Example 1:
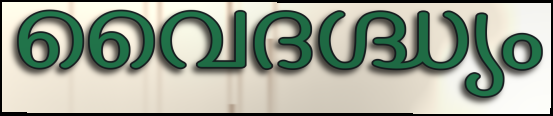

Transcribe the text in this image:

വൈദഗ്ദ്ധ്യം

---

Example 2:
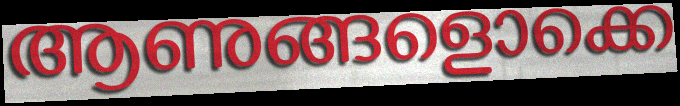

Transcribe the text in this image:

ആണുങ്ങളൊക്കെ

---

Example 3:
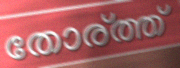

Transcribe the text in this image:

തോര്ത്ത്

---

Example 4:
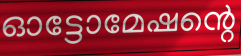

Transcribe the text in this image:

ഓട്ടോമേഷന്റെ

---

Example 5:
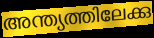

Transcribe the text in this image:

അന്ത്യത്തിലേക്കു